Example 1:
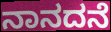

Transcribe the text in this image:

ನಾನದನೆ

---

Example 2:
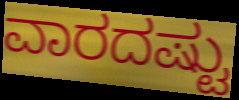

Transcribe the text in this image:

ವಾರದಷ್ಟು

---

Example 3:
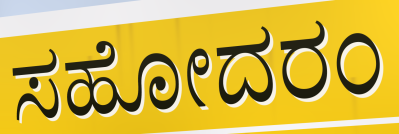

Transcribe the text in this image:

ಸಹೋದರಂ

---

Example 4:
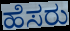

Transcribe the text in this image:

ಹೆಸರು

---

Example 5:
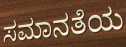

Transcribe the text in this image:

ಸಮಾನತೆಯ